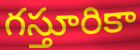
గస్తూరికా